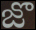
జొ